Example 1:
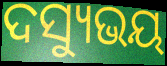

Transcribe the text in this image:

ଦସ୍ୟୁଭୟ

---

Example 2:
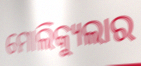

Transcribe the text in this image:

ମୋଲିକ୍ୟୁଲାର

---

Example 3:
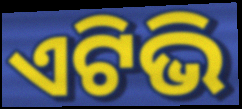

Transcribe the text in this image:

ଏଟିଭି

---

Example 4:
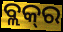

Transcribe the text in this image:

ବ୍ଲକ୍‍ର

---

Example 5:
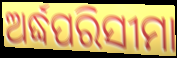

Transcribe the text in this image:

ଅର୍ଦ୍ଧପରିସୀମା